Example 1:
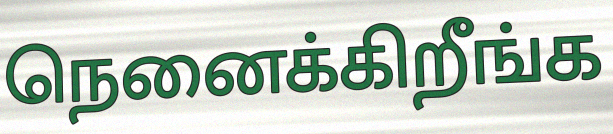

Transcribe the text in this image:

நெனைக்கிறீங்க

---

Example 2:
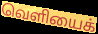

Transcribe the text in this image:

வெளியைக்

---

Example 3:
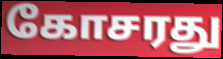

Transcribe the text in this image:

கோசரது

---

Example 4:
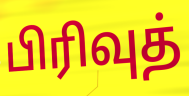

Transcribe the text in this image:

பிரிவுத்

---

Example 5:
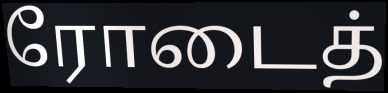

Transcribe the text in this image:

ரோடைத்